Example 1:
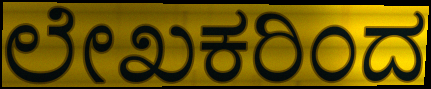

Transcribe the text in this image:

ಲೇಖಕರಿಂದ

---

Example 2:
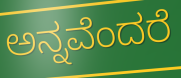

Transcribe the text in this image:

ಅನ್ನವೆಂದರೆ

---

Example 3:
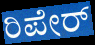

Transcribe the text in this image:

ರಿಪೇರ್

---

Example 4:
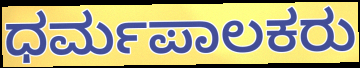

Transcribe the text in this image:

ಧರ್ಮಪಾಲಕರು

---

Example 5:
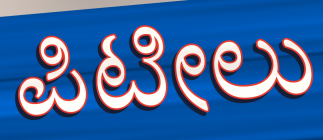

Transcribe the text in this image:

ಪಿಟೀಲು